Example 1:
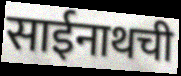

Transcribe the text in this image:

साईनाथची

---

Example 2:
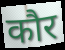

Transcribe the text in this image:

कौर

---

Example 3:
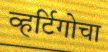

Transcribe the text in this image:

व्हर्टिगोचा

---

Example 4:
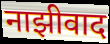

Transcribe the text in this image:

नाझीवाद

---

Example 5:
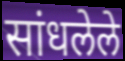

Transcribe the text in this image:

सांधलेले